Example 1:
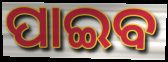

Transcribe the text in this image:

ପାଇବ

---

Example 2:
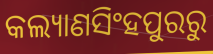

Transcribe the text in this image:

କଲ୍ୟାଣସିଂହପୁରରୁ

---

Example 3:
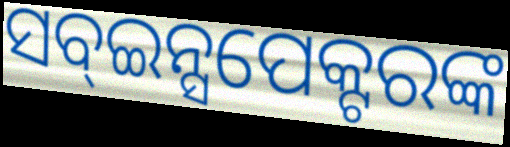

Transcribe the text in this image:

ସବ୍ଇନ୍ସପେକ୍ଟରଙ୍କ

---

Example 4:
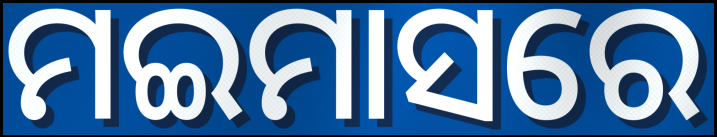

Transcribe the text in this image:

ମଇମାସରେ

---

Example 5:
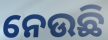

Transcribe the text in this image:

ନେଉଛି